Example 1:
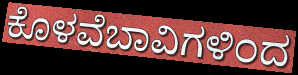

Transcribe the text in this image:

ಕೊಳವೆಬಾವಿಗಳಿಂದ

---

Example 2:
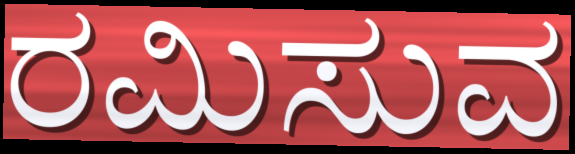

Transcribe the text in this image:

ರಮಿಸುವ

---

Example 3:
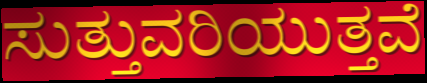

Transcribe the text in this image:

ಸುತ್ತುವರಿಯುತ್ತವೆ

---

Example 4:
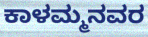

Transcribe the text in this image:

ಕಾಳಮ್ಮನವರ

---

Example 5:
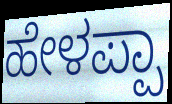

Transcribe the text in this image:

ಹೇಳಪ್ಪಾ